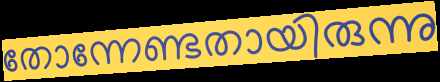
തോന്നേണ്ടതായിരുന്നു